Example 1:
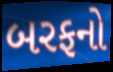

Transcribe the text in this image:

બરફનો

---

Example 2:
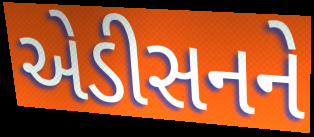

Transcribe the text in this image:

એડીસનને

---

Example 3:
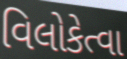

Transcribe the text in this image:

વિલોકેત્વા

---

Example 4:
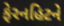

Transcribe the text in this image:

ફેરનહિટને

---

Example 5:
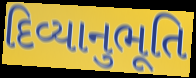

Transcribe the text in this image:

દિવ્યાનુભૂતિ